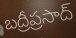
బద్రీప్రసాద్